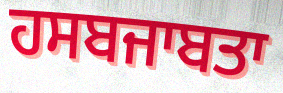
ਹਸਬਜਾਬਤਾ